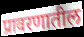
प्रावरणातील